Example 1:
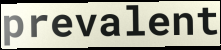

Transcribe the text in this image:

prevalent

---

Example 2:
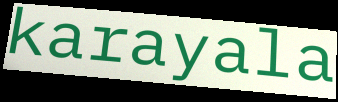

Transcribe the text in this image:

karayala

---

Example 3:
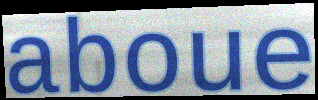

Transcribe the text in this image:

aboue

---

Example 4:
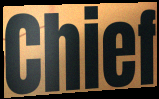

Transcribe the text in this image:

Chief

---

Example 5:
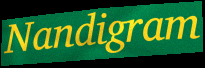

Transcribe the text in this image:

Nandigram